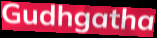
Gudhgatha